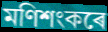
মণিশংকৰে